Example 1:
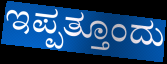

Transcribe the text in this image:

ಇಪ್ಪತ್ತೂಂದು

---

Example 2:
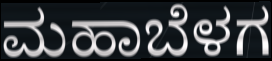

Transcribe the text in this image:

ಮಹಾಬೆಳಗ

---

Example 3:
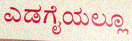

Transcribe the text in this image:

ಎಡಗೈಯಲ್ಲೂ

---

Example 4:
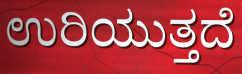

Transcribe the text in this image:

ಉರಿಯುತ್ತದೆ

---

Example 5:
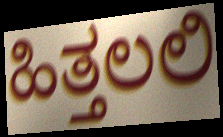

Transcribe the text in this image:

ಹಿತ್ತಲಲಿ